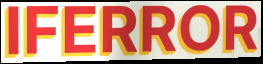
IFERROR